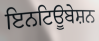
ਇਨਟਿਊਬੇਸ਼ਨ